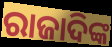
ରାଜାଦିଙ୍କ